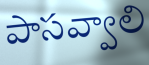
పాసవ్వాలి